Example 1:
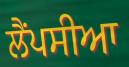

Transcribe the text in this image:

ਲੈਂਪਸੀਆ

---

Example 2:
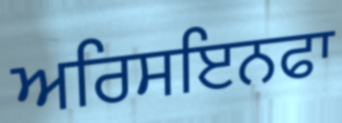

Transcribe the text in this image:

ਅਰਿਸਇਨਫਾ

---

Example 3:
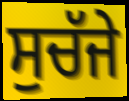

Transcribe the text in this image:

ਸੁਚੱਜੇ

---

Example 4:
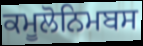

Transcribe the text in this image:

ਕਮੂਲੋਨਿਮਬਸ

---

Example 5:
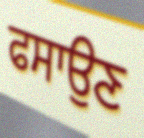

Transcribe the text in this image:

ਫਸਾਉਣ